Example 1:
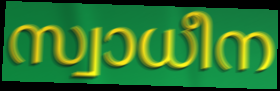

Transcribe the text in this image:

സ്വാധീന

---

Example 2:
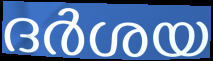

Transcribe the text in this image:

ദർശയ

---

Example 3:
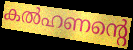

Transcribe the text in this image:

കൽഹണന്റെ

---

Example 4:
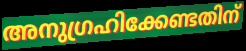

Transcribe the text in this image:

അനുഗ്രഹിക്കേണ്ടതിന്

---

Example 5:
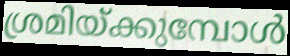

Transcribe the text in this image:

ശ്രമിയ്ക്കുമ്പോൾ